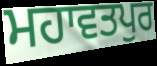
ਮਹਾਵਤਪੁਰ